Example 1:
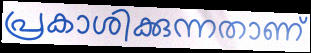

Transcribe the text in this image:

പ്രകാശിക്കുന്നതാണ്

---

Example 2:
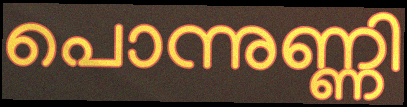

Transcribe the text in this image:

പൊന്നുണ്ണി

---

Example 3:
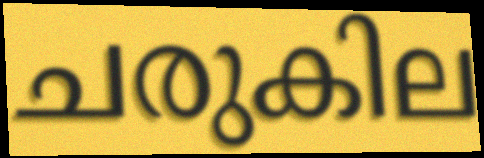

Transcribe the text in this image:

ചരുകില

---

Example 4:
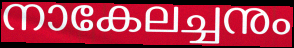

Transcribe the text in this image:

നാകേലച്ചനും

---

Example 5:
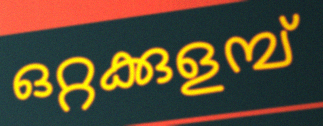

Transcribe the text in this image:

ഒറ്റക്കുളമ്പ്